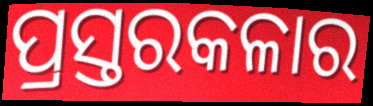
ପ୍ରସ୍ତରକଳାର